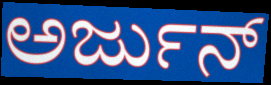
ಅರ್ಜುನ್